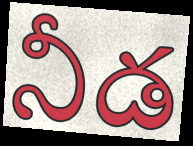
నీడ